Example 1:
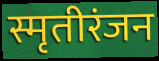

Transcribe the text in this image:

स्मृतीरंजन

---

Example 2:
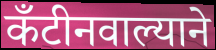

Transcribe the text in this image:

कँटीनवाल्याने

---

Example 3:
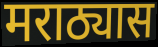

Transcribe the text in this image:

मराठ्यास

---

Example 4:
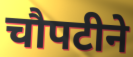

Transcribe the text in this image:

चौपटीने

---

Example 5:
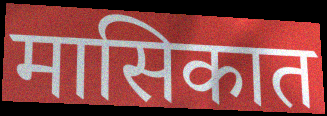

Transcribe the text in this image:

मासिकात